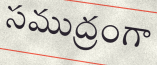
సముద్రంగా